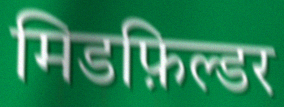
मिडफ़िल्डर